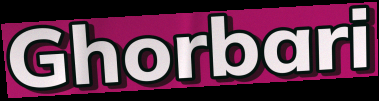
Ghorbari